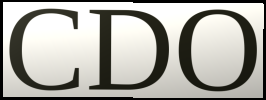
CDO